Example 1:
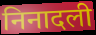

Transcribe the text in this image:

निनादली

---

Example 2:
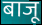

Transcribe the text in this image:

बाजू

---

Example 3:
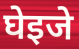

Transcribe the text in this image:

घेइजे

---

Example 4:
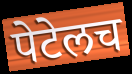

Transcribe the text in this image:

पेटेलच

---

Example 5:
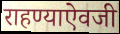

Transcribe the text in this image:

राहण्याऐवजी